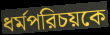
ধর্মপরিচয়কে